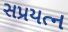
સપ્રયત્ન